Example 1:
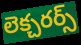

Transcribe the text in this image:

లెక్చరర్స్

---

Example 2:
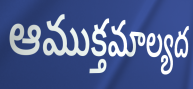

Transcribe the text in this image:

ఆముక్తమాల్యద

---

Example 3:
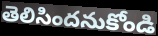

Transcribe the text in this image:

తెలిసిందనుకోండి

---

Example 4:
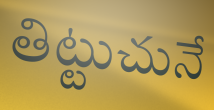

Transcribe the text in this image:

తిట్టుచునే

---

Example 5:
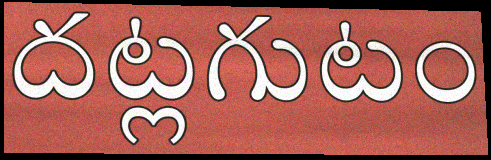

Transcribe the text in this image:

దట్లగుటం